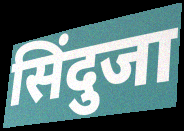
सिंदुजा